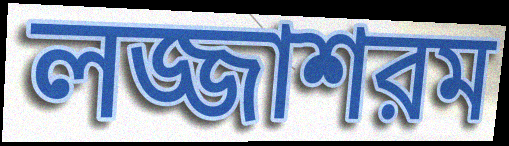
লজ্জাশরম